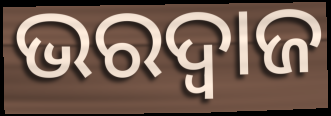
ଭରଦ୍ଵାଜ